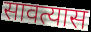
सावत्यास